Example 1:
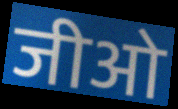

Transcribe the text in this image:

जीओ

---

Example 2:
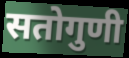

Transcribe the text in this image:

सतोगुणी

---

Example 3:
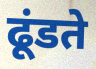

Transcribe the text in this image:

ढूंडते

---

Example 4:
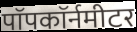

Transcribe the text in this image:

पॉपकॉर्नमीटर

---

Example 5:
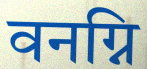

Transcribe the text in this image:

वनग्नि